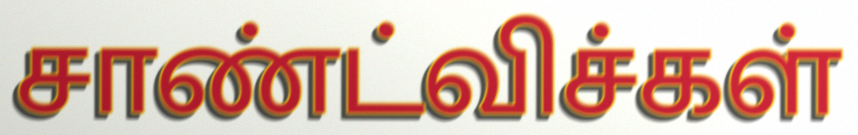
சாண்ட்விச்கள்